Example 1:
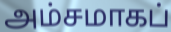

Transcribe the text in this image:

அம்சமாகப்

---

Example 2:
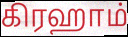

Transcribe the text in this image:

கிரஹாம்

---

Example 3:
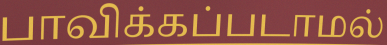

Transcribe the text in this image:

பாவிக்கப்படாமல்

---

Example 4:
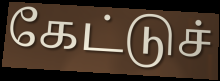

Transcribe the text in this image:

கேட்டுச்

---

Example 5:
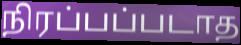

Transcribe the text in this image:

நிரப்பப்படாத